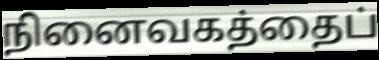
நினைவகத்தைப்